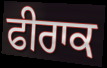
ਫੀਰਾਕ